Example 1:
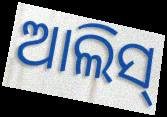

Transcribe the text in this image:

ଆଲିସ୍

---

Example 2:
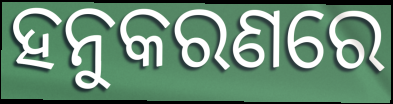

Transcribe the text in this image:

ହନୁକରଣରେ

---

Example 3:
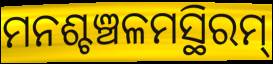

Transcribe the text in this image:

ମନଶ୍ଚଞ୍ଚଳମସ୍ଥିରମ୍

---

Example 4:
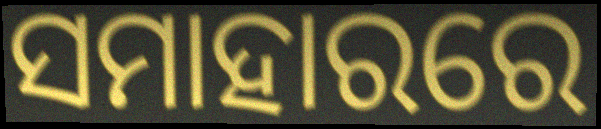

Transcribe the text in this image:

ସମାହାରରେ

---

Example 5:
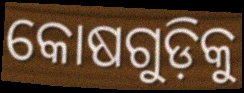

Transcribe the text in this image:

କୋଷଗୁଡ଼ିକୁ